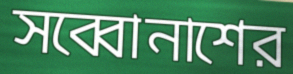
সব্বোনাশের